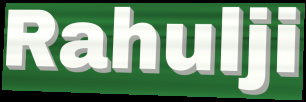
Rahulji